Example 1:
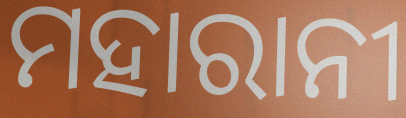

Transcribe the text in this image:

ମହାରାନୀ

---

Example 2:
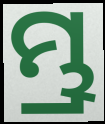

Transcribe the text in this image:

ମ୍ଭ୍ର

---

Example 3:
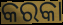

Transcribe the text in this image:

କରକା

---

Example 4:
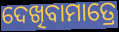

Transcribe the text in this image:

ଦେଖିବାମାତ୍ରେ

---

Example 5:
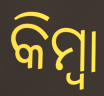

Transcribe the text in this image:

କିମ୍ବା